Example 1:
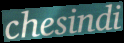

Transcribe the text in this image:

chesindi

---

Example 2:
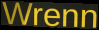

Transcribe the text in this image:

Wrenn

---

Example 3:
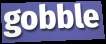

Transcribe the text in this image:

gobble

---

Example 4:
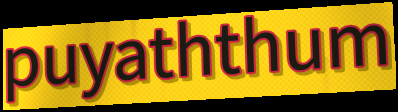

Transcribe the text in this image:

puyaththum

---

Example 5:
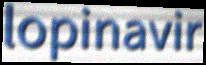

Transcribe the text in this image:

lopinavir